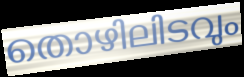
തൊഴിലിടവും